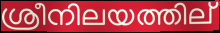
ശ്രീനിലയത്തില്